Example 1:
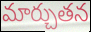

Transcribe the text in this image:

మార్చుతన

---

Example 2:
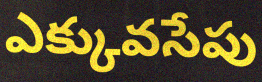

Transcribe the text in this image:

ఎక్కువసేపు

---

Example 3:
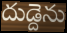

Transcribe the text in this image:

దుడ్దెను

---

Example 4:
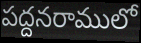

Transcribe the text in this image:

పద్దనరాములో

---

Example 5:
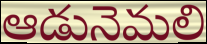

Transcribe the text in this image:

ఆడునెమలి